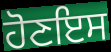
ਹੋਣਇਸ